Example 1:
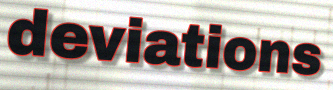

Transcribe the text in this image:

deviations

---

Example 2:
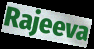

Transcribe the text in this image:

Rajeeva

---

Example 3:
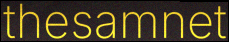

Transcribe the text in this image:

thesamnet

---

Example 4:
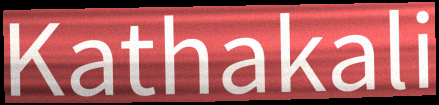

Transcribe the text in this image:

Kathakali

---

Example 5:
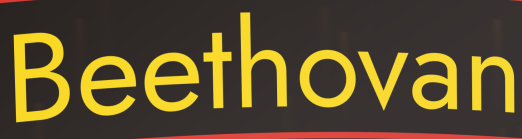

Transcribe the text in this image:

Beethovan